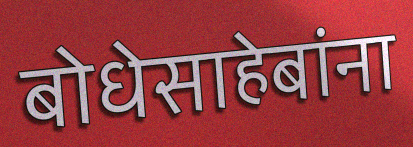
बोधेसाहेबांना